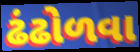
ઢંઢોળવા